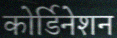
कोर्डिनेशन